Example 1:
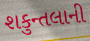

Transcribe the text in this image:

શકુન્તલાની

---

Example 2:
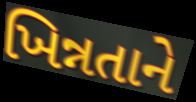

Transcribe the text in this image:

ખિન્નતાને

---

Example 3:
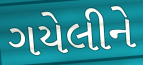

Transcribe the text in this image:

ગયેલીને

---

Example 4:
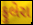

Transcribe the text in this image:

ફુલેરા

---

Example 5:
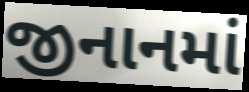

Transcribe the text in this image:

જીનાનમાં